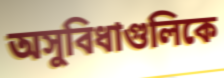
অসুবিধাগুলিকে